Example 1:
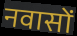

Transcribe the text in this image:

नवासों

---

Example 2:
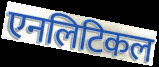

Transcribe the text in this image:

एनलिटिकल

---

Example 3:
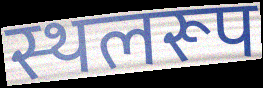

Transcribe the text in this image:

स्थलरूप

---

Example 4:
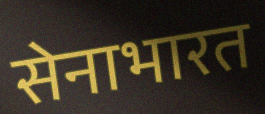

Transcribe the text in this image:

सेनाभारत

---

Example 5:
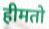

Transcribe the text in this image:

हीमतो